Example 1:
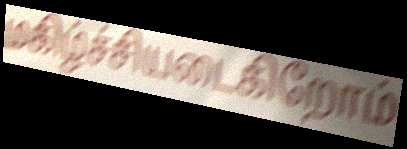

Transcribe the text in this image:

மகிழ்ச்சியடைகிறோம்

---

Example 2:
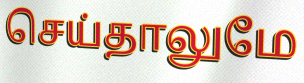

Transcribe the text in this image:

செய்தாலுமே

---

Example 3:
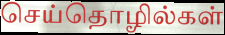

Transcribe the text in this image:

செய்தொழில்கள்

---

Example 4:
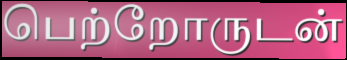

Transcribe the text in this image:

பெற்றோருடன்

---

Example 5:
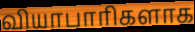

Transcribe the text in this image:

வியாபாரிகளாக